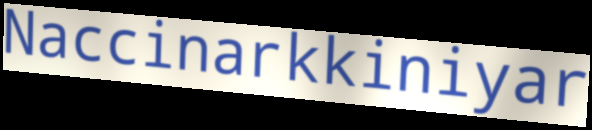
Naccinarkkiniyar